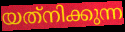
യത്‌നിക്കുന്ന